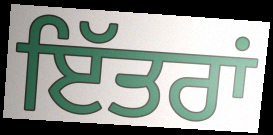
ਇੱਤਰਾਂ